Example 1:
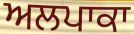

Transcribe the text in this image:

ਅਲਪਾਕਾ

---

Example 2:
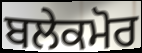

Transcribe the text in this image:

ਬਲੇਕਮੋਰ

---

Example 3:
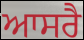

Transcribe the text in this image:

ਆਸਰੈ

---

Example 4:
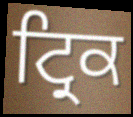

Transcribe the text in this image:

ਟ੍ਰਿਕ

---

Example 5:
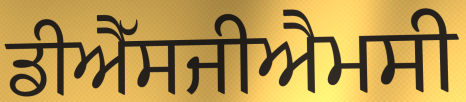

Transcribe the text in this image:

ਡੀਐੱਸਜੀਐਮਸੀ